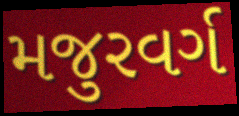
મજુરવર્ગ